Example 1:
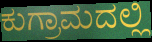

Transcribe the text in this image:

ಕುಗ್ರಾಮದಲ್ಲಿ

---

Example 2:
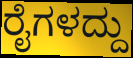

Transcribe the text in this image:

ರೈಗಳದ್ದು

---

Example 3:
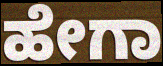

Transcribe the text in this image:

ಹೇಗಾ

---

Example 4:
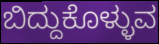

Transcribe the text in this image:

ಬಿದ್ದುಕೊಳ್ಳುವ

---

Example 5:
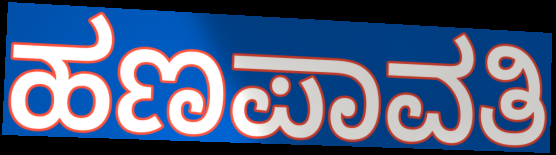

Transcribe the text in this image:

ಹಣಪಾವತಿ